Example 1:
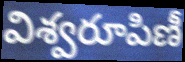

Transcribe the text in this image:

విశ్వరూపిణీ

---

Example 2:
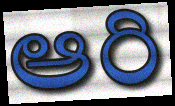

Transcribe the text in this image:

ఆరి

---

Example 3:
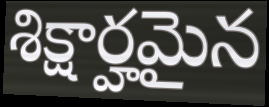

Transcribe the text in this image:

శిక్షార్హమైన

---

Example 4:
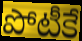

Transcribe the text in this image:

పోటీకే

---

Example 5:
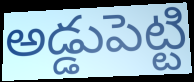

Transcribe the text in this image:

అడ్డుపెట్టి